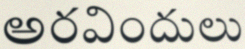
అరవిందులు